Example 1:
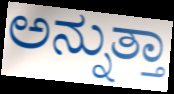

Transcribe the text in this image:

ಅನ್ನುತ್ತಾ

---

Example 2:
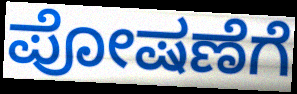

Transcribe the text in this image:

ಪೋಷಣೆಗೆ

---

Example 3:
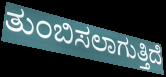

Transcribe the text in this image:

ತುಂಬಿಸಲಾಗುತ್ತಿದೆ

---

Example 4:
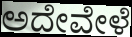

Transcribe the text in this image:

ಅದೇವೇಳೆ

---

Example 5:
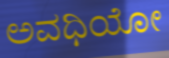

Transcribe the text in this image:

ಅವಧಿಯೋ